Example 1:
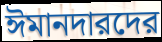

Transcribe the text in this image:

ঈমানদারদের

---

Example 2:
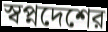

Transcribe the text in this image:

স্বপ্নদেশের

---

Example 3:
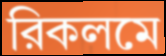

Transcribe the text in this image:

রিকলমে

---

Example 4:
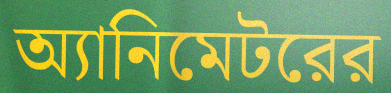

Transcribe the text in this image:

অ্যানিমেটরের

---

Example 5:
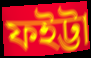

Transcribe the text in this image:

ফইট্টা